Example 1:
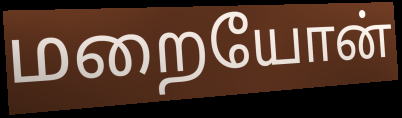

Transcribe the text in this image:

மறையோன்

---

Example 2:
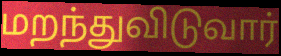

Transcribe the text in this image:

மறந்துவிடுவார்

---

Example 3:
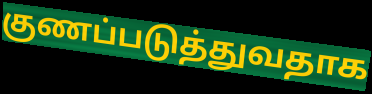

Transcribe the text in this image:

குணப்படுத்துவதாக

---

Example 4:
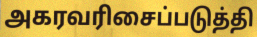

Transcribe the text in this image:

அகரவரிசைப்படுத்தி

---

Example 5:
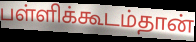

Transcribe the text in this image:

பள்ளிக்கூடம்தான்